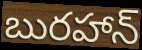
బురహాన్